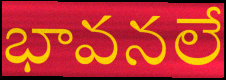
భావనలే